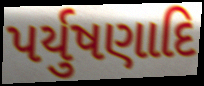
પર્યુષણાદિ